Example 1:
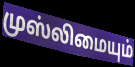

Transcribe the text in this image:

முஸ்லிமையும்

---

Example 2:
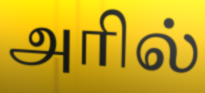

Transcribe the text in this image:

அரில்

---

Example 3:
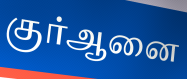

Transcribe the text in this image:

குர்ஆனை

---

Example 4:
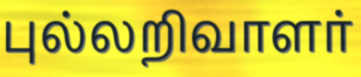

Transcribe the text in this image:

புல்லறிவாளர்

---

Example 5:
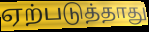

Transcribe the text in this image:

ஏற்படுத்தாது